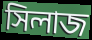
সিলাজ